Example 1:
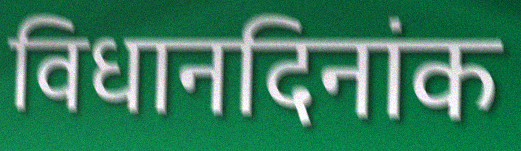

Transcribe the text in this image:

विधानदिनांक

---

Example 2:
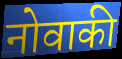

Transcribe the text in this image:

नोवाकी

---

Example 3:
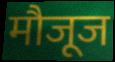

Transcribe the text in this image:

मौजूज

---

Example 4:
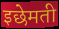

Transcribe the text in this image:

इछेमती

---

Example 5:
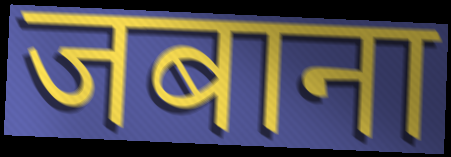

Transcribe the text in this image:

जबाना